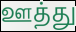
ஊத்து